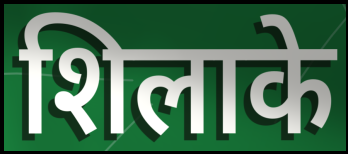
शिलाके